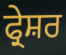
ਫ੍ਰੇਸ਼ਰ